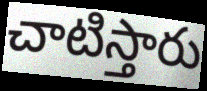
చాటిస్తారు